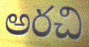
అరచి